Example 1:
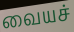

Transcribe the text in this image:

வையச்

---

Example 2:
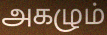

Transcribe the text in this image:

அகழும்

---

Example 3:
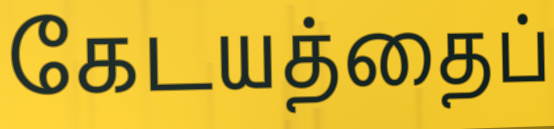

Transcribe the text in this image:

கேடயத்தைப்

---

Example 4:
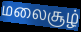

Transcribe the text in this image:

மலைசூழ்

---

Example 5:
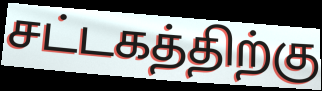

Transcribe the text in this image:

சட்டகத்திற்கு